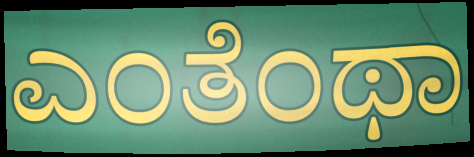
ಎಂತೆಂಥಾ